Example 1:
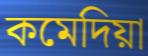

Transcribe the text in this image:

কমেদিয়া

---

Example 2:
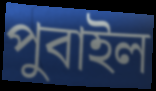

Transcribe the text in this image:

পুবাইল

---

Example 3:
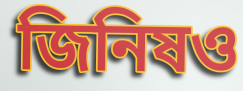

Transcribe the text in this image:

জিনিষও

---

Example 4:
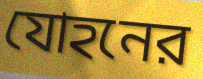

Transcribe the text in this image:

যোহনের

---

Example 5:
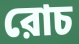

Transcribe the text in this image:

রোচ